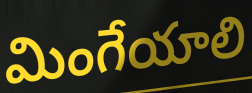
మింగేయాలి